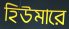
হিউমারে